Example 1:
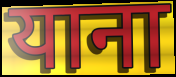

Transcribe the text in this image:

याना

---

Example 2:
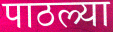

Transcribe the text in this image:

पाठल्या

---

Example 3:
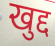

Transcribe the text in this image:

खुद्द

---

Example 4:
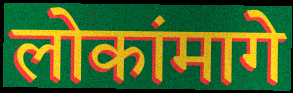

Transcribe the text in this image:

लोकांमागे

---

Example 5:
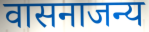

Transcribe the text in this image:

वासनाजन्य